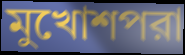
মুখোশপরা